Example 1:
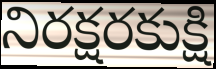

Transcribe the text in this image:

నిరక్షరకుక్షి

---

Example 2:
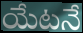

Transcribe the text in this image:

యేటనే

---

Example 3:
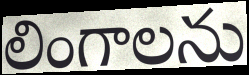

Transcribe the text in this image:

లింగాలను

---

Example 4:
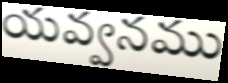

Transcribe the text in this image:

యవ్వనము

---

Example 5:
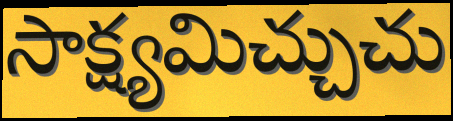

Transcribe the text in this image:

సాక్ష్యమిచ్చుచు